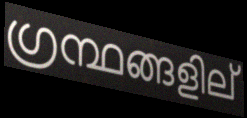
ഗ്രന്ഥങ്ങളില്